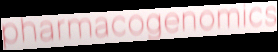
pharmacogenomics